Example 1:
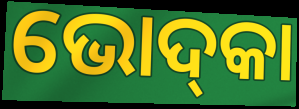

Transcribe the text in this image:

ଭୋଦ୍‌କା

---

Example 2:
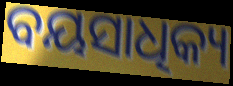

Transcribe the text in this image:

ବୟସାଧିକ୍ୟ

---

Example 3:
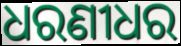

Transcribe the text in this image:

ଧରଣୀଧର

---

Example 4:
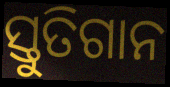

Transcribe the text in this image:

ସ୍ତୁତିଗାନ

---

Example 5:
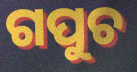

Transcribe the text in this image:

ଗପୁଚ